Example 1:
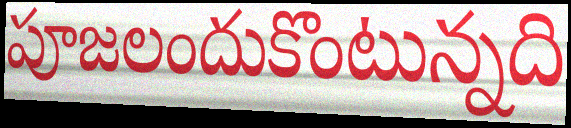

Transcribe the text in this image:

పూజలందుకొంటున్నది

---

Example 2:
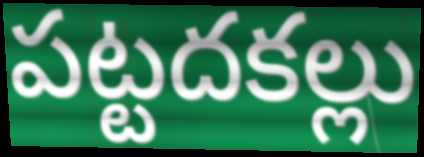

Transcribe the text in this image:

పట్టదకల్లు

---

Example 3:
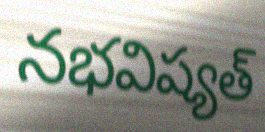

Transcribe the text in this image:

నభవిష్యత్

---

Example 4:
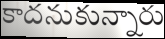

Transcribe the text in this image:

కాదనుకున్నారు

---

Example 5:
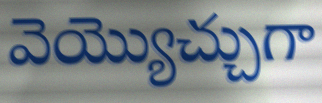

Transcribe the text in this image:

వెయ్యొచ్చుగా